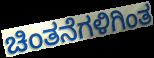
ಚಿಂತನೆಗಳಿಗಿಂತ